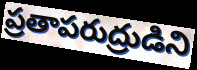
ప్రతాపరుద్రుడిని